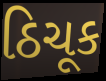
ઠિચૂક